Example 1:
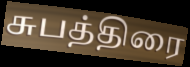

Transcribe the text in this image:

சுபத்திரை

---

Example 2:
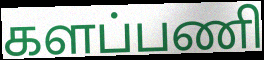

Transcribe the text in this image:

களப்பணி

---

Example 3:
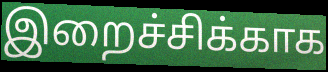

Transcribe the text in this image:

இறைச்சிக்காக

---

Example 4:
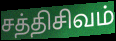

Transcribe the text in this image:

சத்திசிவம்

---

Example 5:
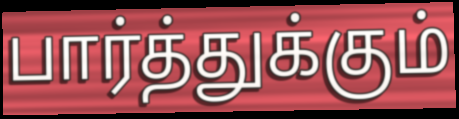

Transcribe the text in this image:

பார்த்துக்கும்